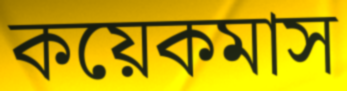
কয়েকমাস